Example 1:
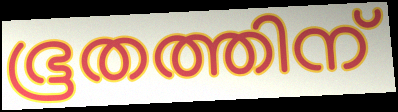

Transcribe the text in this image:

ഭൂതത്തിന്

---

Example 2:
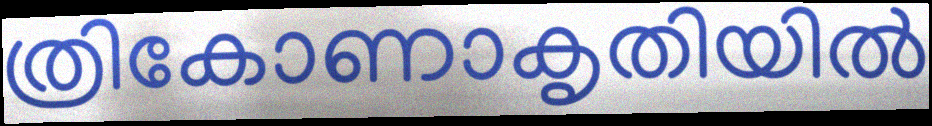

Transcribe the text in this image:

ത്രികോണാകൃതിയിൽ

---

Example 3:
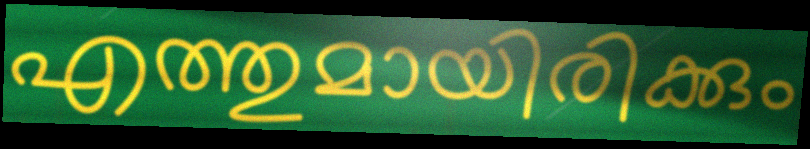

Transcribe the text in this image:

എത്തുമായിരിക്കും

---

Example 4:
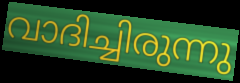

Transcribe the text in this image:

വാദിച്ചിരുന്നു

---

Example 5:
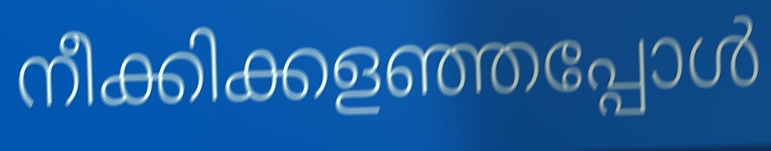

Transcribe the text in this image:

നീക്കിക്കളഞ്ഞപ്പോൾ